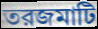
তরজমাটি